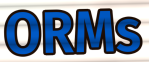
ORMs